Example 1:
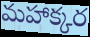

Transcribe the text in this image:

మహాక్కర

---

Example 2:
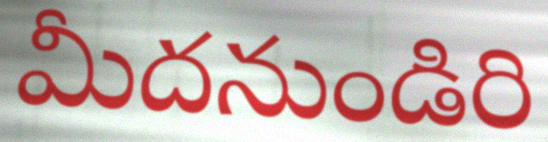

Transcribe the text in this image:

మీదనుండిరి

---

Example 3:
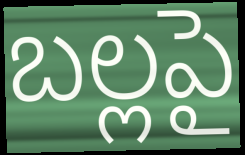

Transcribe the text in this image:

బల్లపై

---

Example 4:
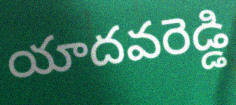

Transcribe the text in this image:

యాదవరెడ్డి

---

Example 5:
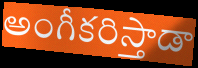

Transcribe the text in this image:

అంగీకరిస్తాడా